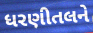
ધરણીતલને